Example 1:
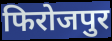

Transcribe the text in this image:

फिरोजपुर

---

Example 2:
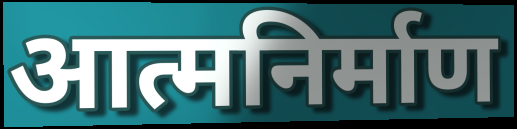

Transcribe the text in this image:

आत्मनिर्माण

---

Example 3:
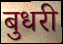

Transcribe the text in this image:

बुधरी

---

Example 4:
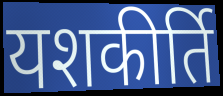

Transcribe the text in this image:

यशकीर्ति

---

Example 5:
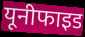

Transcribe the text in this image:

यूनीफाइड